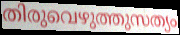
തിരുവെഴുത്തുസത്യം